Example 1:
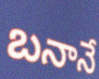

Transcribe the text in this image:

బనానే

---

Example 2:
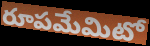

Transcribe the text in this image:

రూపమేమిటో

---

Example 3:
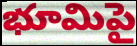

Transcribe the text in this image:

భూమిపై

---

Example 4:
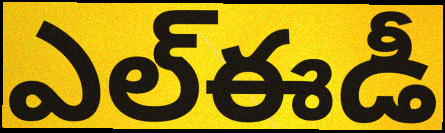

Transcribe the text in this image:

ఎల్ఈడీ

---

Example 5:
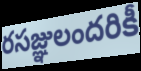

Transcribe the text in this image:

రసజ్ఞులందరికీ